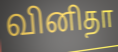
வினிதா